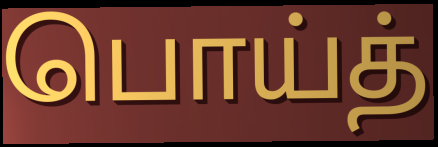
பொய்த்